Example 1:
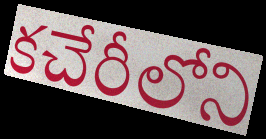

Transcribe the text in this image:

కచేరీలోని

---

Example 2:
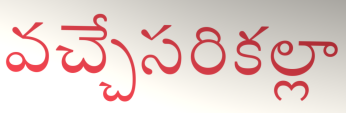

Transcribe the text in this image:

వచ్చేసరికల్లా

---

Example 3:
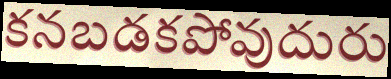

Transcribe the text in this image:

కనబడకపోవుదురు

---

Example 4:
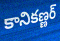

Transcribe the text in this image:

కానికణ్ణర్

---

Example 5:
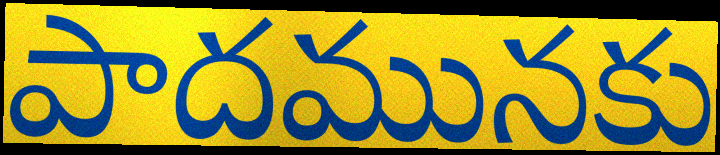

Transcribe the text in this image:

పాదమునకు